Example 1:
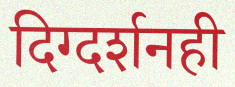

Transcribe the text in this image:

दिग्दर्शनही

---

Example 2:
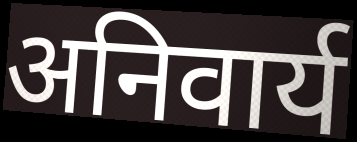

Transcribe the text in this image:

अनिवार्य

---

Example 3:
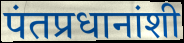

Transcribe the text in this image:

पंतप्रधानांशी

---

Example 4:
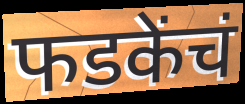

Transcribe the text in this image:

फडकेंचं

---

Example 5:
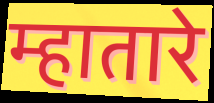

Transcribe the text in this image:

म्हातारे